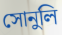
সোনুলি